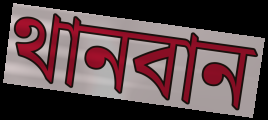
থানবান